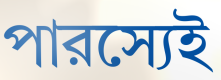
পারস্যেই